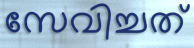
സേവിച്ചത്